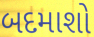
બદમાશો